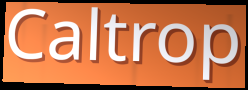
Caltrop